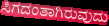
ಸಿಗದಂತಾಗಿರುವುದು